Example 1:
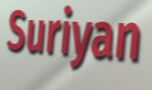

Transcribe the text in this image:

Suriyan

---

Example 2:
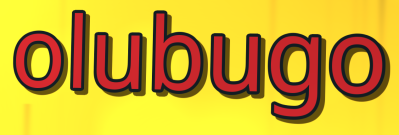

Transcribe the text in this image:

olubugo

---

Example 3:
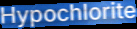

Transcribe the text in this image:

Hypochlorite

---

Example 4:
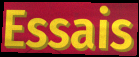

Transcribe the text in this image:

Essais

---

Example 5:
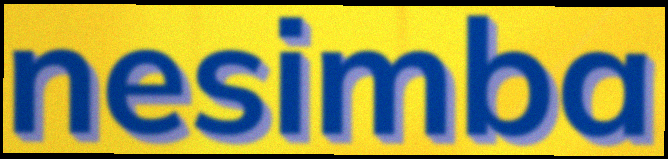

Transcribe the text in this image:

nesimba